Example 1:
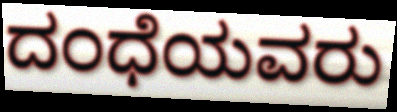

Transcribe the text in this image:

ದಂಧೆಯವರು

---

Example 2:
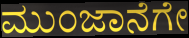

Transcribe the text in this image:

ಮುಂಜಾನೆಗೇ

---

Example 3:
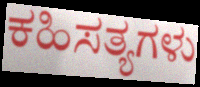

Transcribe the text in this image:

ಕಹಿಸತ್ಯಗಳು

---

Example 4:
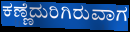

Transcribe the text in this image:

ಕಣ್ಣೆದುರಿಗಿರುವಾಗ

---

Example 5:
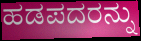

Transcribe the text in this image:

ಹಡಪದರನ್ನು